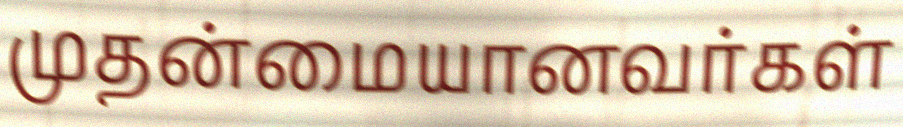
முதன்மையானவர்கள்